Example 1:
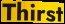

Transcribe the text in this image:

Thirst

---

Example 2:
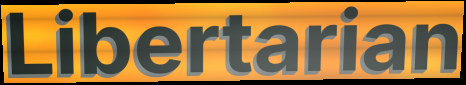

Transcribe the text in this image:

Libertarian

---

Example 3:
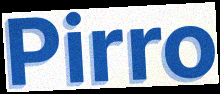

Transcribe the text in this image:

Pirro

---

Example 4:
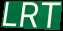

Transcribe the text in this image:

LRT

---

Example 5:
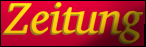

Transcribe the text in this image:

Zeitung